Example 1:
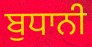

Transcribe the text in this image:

ਬੁਧਾਨੀ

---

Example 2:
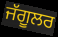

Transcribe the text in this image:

ਜੱਗੂਲਰ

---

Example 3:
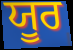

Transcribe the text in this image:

ਯੂਰ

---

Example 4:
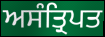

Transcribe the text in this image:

ਅਸੰਤ੍ਰਿਪਤ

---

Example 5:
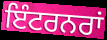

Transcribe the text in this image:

ਇੰਟਰਨਰਾਂ